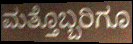
ಮತ್ತೊಬ್ಬರಿಗೂ